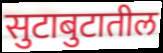
सुटाबुटातील